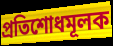
প্রতিশোধমূলক